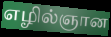
எழில்ஞான